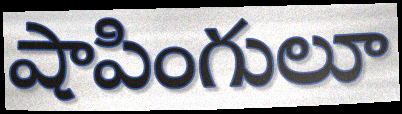
షాపింగులూ